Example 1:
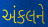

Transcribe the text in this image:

અંકલને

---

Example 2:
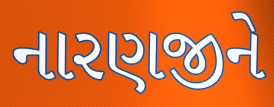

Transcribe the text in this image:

નારણજીને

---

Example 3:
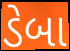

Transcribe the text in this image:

ડેબા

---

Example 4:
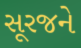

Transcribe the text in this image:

સૂરજને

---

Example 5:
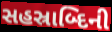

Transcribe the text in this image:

સહસ્રાબ્દિની